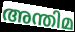
അന്തിമ